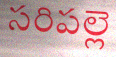
సరిపల్లె